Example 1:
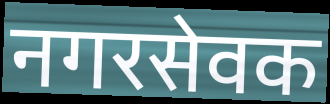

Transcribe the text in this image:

नगरसेवक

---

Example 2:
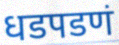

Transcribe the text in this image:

धडपडणं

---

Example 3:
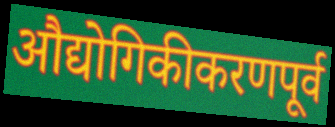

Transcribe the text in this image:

औद्योगिकीकरणपूर्व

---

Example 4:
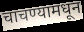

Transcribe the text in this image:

चाचण्यामधून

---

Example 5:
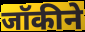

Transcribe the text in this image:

जॉकीने